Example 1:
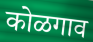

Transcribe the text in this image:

कोळगाव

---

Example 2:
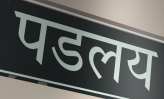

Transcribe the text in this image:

पडलय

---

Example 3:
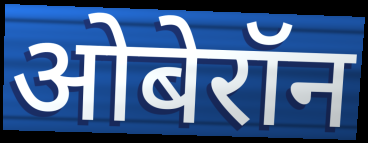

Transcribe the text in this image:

ओबेरॉन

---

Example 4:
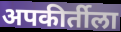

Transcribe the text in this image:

अपकीर्तीला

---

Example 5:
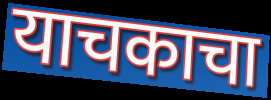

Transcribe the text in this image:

याचकाचा